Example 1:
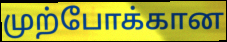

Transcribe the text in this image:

முற்போக்கான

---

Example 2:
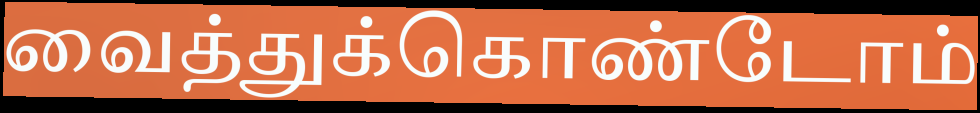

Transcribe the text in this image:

வைத்துக்கொண்டோம்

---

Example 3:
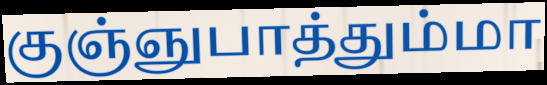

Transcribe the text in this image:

குஞ்ஞுபாத்தும்மா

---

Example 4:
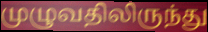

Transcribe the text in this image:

முழுவதிலிருந்து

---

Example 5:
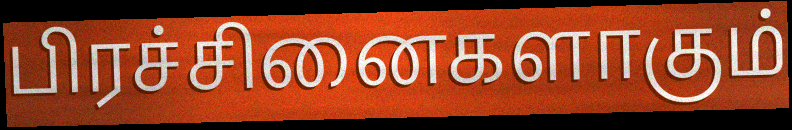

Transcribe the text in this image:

பிரச்சினைகளாகும்